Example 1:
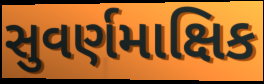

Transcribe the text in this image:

સુવર્ણમાક્ષિક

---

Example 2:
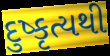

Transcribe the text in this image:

દુષ્કૃત્યથી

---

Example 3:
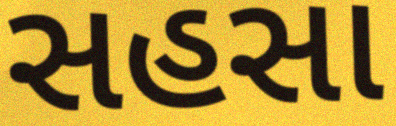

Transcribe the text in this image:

સહસા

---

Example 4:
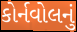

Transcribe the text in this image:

કોર્નવોલનું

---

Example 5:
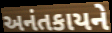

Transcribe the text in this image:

અનંતકાયને